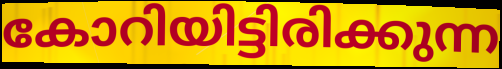
കോറിയിട്ടിരിക്കുന്ന